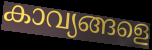
കാവ്യങ്ങളെ